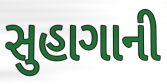
સુહાગાની